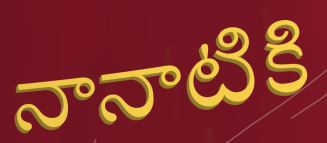
నానాటికి